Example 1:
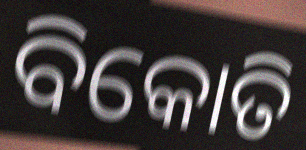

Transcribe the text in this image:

ବିକୋତି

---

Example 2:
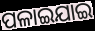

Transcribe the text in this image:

ପଳାଇଯାଇ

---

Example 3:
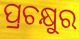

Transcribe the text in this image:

ପ୍ରଚକ୍ଷୁର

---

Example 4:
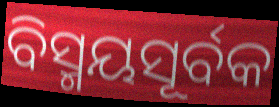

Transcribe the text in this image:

ବିସ୍ମୟସୂର୍ବକ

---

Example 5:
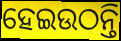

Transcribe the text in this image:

ହେଇଉଠନ୍ତି